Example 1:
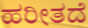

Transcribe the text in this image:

ಹರೀತದೆ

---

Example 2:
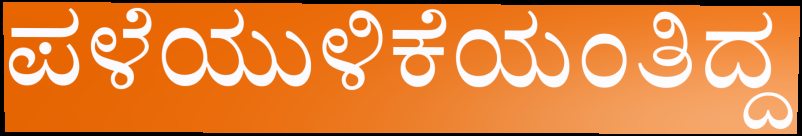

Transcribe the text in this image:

ಪಳೆಯುಳಿಕೆಯಂತಿದ್ದ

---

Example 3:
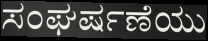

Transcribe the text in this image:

ಸಂಘರ್ಷಣೆಯು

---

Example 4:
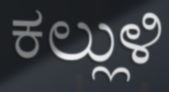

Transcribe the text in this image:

ಕಲ್ಲುಳಿ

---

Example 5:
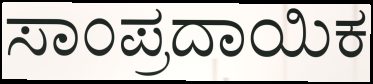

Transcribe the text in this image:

ಸಾಂಪ್ರದಾಯಿಕ